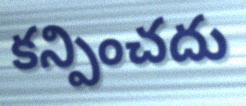
కన్పించదు